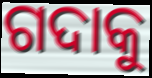
ଗଦାକୁ